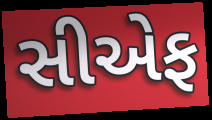
સીએફ